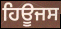
ਹਿਊਜਸ